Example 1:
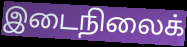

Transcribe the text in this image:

இடைநிலைக்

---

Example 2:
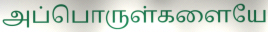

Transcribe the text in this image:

அப்பொருள்களையே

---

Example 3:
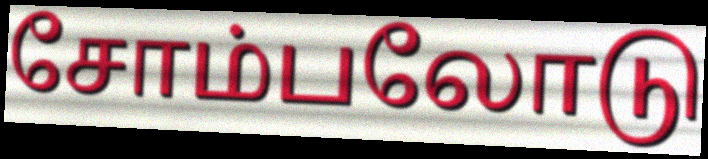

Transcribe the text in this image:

சோம்பலோடு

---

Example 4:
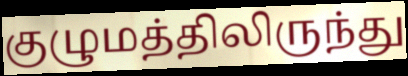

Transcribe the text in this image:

குழுமத்திலிருந்து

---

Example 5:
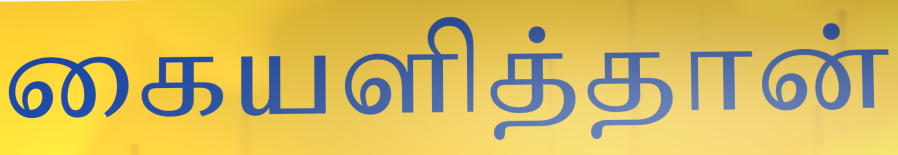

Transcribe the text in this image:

கையளித்தான்